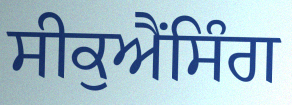
ਸੀਕੁਐਂਸਿੰਗ